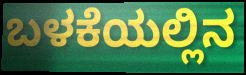
ಬಳಕೆಯಲ್ಲಿನ